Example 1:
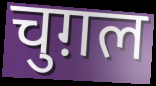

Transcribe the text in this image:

चुग़ल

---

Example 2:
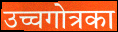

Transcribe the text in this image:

उच्चगोत्रका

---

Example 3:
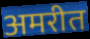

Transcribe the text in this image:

अमरीत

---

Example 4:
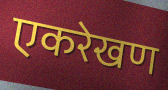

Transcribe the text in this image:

एकरेखण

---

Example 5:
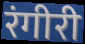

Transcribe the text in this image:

रंगीरी